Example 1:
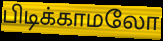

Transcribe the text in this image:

பிடிக்காமலோ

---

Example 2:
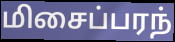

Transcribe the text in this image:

மிசைப்பரந்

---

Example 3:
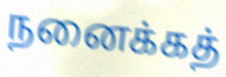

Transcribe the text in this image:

நனைக்கத்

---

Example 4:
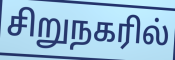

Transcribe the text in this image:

சிறுநகரில்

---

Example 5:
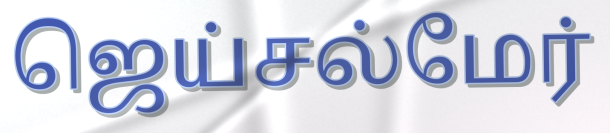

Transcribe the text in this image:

ஜெய்சல்மேர்